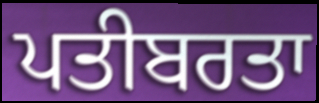
ਪਤੀਬਰਤਾ